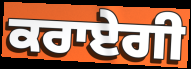
ਕਰਾਏਗੀ